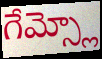
గేమ్స్లో